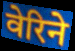
वेरिने